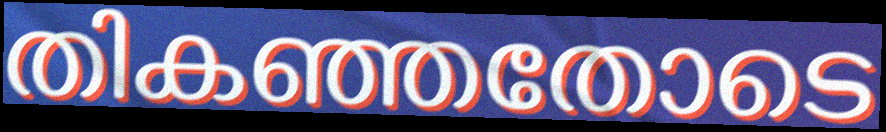
തികഞ്ഞതോടെ